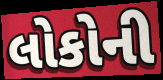
લોકોની